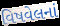
વિષવેલનાં